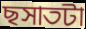
ছসাতটা